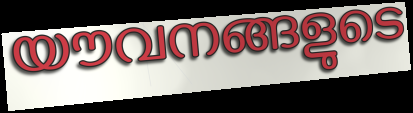
യൗവനങ്ങളുടെ